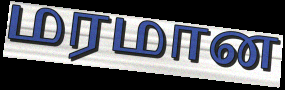
மரமான